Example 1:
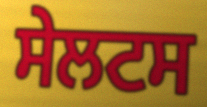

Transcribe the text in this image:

ਸੇਲਟਸ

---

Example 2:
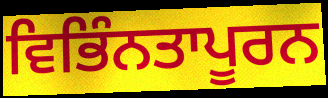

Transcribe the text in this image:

ਵਿਭਿੰਨਤਾਪੂਰਨ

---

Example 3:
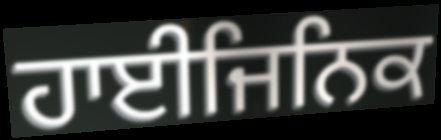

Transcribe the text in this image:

ਹਾਈਜਿਨਿਕ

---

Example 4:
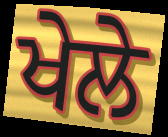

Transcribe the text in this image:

ਖੇਲੇ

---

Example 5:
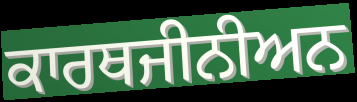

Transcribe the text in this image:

ਕਾਰਥਜੀਨੀਅਨ